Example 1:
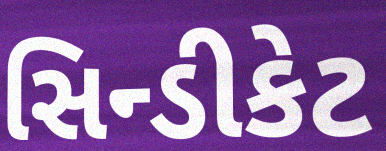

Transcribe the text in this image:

સિન્ડીકેટ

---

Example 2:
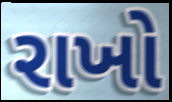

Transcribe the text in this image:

રાખો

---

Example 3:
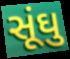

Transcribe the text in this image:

સૂંઘુ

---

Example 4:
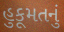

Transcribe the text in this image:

હુકૂમતનું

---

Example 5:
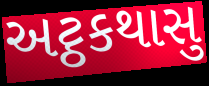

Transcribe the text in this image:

અટ્ઠકથાસુ